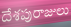
దేశపురాజులు